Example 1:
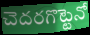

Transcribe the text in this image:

చెదరగొట్టెనో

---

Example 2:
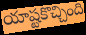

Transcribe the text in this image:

యాష్టకొచ్చింది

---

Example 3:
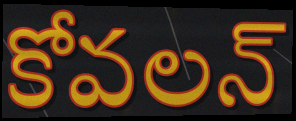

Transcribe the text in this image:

కోవలన్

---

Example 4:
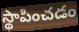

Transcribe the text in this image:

స్థాపించడం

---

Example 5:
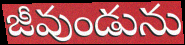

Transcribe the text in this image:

జీవుండును